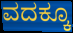
ವದಕ್ಕೂ